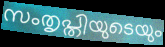
സംതൃപ്തിയുടെയും